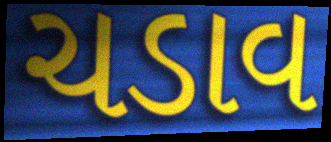
ચડાવ